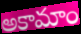
అకామాం